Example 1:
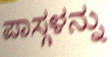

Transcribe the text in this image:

ಪಾಸ್ಗಳನ್ನು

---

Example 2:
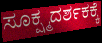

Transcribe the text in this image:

ಸೂಕ್ಷ್ಮದರ್ಶಕಕ್ಕೆ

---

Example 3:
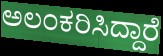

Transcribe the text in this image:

ಅಲಂಕರಿಸಿದ್ದಾರೆ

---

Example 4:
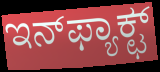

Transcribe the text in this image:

ಇನ್‌ಫ್ಯಾಕ್ಟ್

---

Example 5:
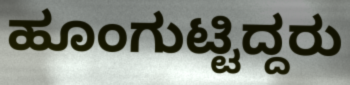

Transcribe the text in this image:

ಹೂಂಗುಟ್ಟಿದ್ದರು